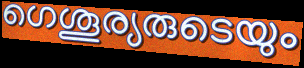
ഗെശൂര്യരുടെയും